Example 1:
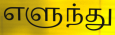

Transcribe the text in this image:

எளுந்து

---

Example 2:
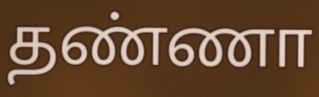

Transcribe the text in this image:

தண்ணா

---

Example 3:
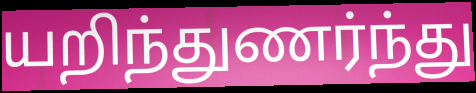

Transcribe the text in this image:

யறிந்துணர்ந்து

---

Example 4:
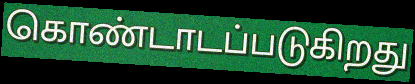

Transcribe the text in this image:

கொண்டாடப்படுகிறது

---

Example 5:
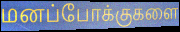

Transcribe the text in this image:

மனப்போக்குகளை